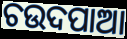
ଚଉଦପାଆ